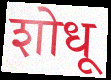
शोधू